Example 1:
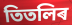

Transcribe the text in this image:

তিতলিৰ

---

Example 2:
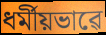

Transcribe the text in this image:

ধৰ্মীয়ভাৱে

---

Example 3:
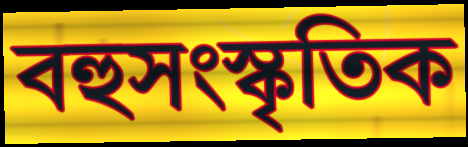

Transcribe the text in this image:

বহুসংস্কৃতিক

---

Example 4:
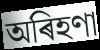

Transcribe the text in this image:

অৰিহণা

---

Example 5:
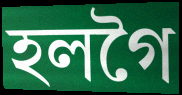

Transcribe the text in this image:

হলগৈ